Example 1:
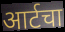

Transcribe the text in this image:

आर्टचा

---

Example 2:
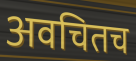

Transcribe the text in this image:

अवचितच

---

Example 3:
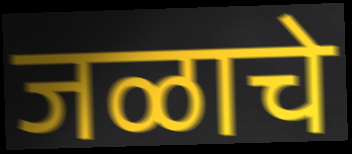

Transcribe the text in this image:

जळाचे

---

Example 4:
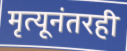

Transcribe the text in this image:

मृत्यूनंतरही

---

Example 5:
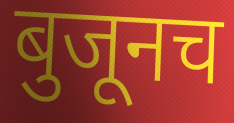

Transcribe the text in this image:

बुजूनच